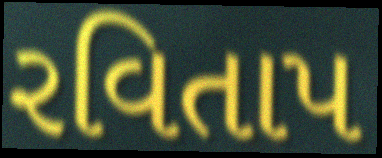
રવિતાપ